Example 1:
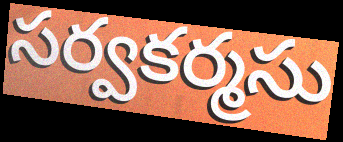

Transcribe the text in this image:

సర్వకర్మసు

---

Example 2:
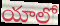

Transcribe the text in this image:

యాలో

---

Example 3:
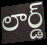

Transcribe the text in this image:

లార్డ్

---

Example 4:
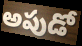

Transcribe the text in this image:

అపుడో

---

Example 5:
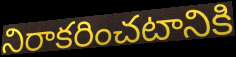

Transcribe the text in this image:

నిరాకరించటానికి